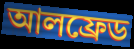
আলফ্রেড